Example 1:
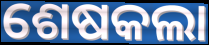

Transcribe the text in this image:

ଶେଷକଲା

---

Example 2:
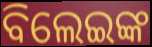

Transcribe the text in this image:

ବିଲେଇଙ୍କ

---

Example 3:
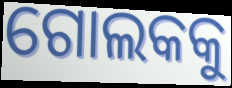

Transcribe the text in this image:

ଗୋଲକକୁ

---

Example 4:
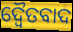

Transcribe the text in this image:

ଦ୍ୱୈତବାଦ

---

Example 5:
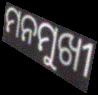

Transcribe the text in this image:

ମନମୁଖୀ